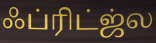
ஃப்ரிட்ஜ்ல